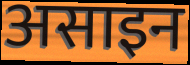
असाइन